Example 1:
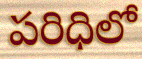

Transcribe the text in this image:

పరిధిలో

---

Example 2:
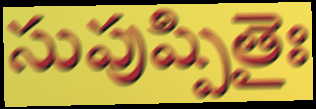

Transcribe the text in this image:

సుపుష్పితైః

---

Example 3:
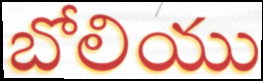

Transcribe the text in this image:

బోలియు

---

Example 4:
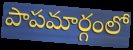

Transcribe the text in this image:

పాపమార్గంలో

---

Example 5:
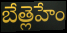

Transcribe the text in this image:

బేత్లెహేం